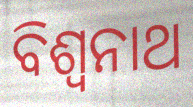
ବିଶ୍ଵନାଥ